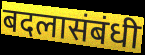
बदलासंबंधी